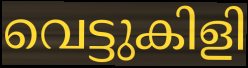
വെട്ടുകിളി